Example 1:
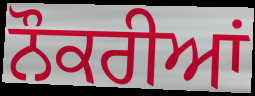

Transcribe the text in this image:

ਨੌਕਰੀਆਂ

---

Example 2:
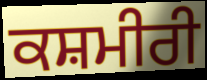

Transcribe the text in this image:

ਕਸ਼ਮੀਰੀ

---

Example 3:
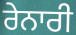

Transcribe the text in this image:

ਰੇਨਾਰੀ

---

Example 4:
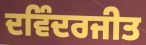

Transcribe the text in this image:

ਦਵਿੰਦਰਜੀਤ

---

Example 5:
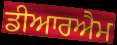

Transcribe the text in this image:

ਡੀਆਰਐਮ